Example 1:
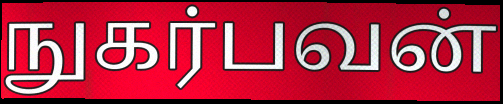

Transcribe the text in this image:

நுகர்பவன்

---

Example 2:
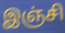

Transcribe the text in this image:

இஞ்சி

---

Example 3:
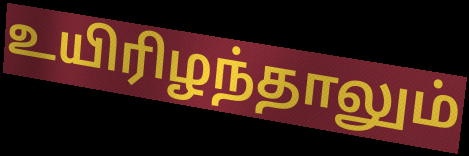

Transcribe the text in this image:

உயிரிழந்தாலும்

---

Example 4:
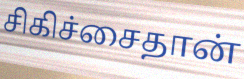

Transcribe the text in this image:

சிகிச்சைதான்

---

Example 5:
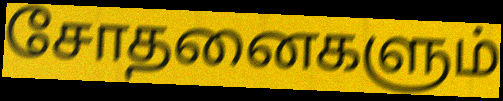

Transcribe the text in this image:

சோதனைகளும்